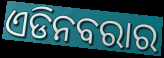
ଏଡିନବରାର